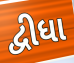
દ્વીધા